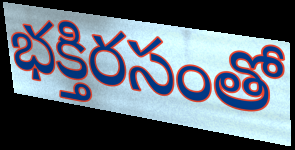
భక్తిరసంతో